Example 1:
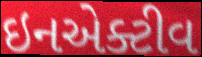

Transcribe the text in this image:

ઇનએક્ટીવ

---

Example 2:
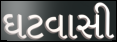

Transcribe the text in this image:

ઘટવાસી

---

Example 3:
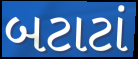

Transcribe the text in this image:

બટાટાં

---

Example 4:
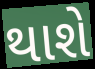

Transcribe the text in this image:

થાશે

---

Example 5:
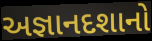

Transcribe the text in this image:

અજ્ઞાનદશાનો